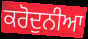
ਕਰੋਦੁਨੀਆ